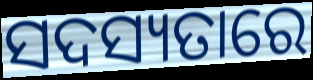
ସଦସ୍ୟତାରେ